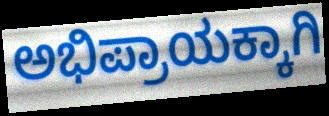
ಅಭಿಪ್ರಾಯಕ್ಕಾಗಿ